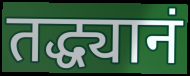
तद्ध्यानं